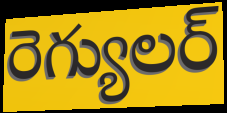
రెగ్యులర్